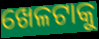
ଖେଳଟାକୁ